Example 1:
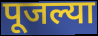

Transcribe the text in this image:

पूजल्या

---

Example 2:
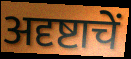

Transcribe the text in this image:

अदृष्टाचें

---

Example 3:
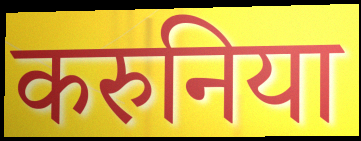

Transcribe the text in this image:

करुनिया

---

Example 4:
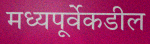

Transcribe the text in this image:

मध्यपूर्वेकडील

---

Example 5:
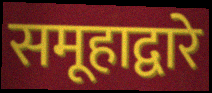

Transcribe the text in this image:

समूहाद्वारे